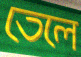
তেলে